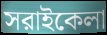
সরাইকেলা